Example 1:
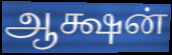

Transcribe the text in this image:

ஆக்ஷன்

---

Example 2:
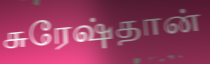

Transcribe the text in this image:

சுரேஷ்தான்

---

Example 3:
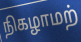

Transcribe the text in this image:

நிகழாமற்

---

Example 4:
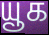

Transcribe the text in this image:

யூக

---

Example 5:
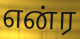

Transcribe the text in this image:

என்ர